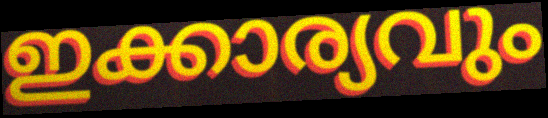
ഇക്കാര്യവും